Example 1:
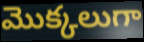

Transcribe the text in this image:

మొక్కలుగా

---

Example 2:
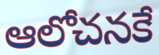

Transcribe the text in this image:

ఆలోచనకే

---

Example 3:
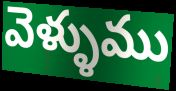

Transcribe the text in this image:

వెళ్ళుము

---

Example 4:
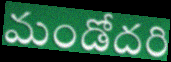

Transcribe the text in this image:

మండోదరి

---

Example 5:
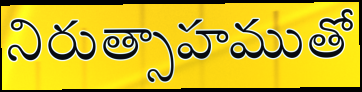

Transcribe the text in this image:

నిరుత్సాహముతో